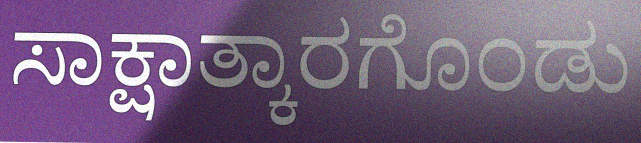
ಸಾಕ್ಷಾತ್ಕಾರಗೊಂಡು